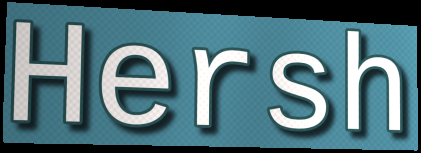
Hersh